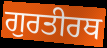
ਗੁਰਤੀਰਥ